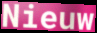
Nieuw